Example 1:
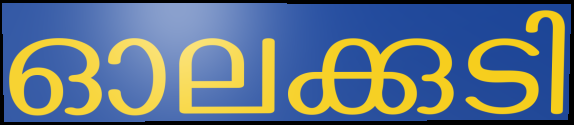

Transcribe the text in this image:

ഓലക്കുടി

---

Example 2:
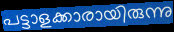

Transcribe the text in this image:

പട്ടാളക്കാരായിരുന്നു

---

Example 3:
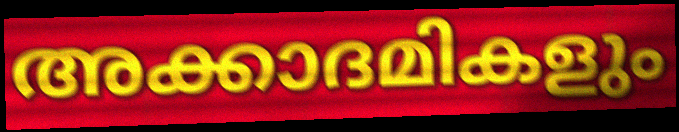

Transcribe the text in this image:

അക്കാദമികളും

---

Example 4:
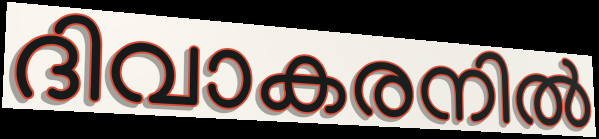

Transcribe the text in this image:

ദിവാകരനിൽ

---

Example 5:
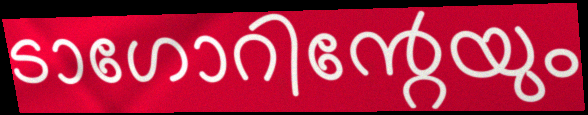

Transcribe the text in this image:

ടാഗോറിന്റേയും